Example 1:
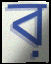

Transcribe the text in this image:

ব়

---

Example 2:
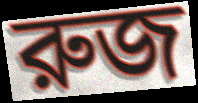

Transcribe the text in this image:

রুজ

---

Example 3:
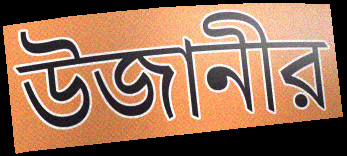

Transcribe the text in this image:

উজানীর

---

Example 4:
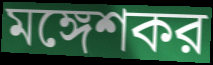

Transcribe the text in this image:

মঙ্গেশকর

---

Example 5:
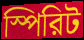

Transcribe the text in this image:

স্পিরিট